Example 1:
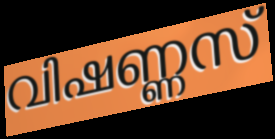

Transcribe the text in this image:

വിഷണ്ണസ്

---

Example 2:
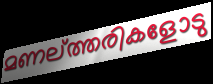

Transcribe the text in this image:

മണല്ത്തരികളോടു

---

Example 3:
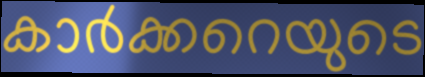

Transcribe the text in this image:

കാർക്കറെയുടെ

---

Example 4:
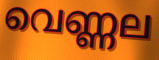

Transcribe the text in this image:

വെണ്ണല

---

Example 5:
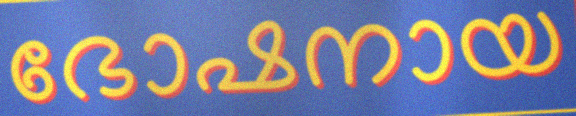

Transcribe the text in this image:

ഭോഷനായ